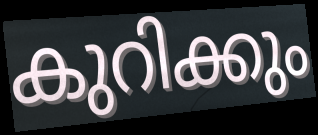
കുറിക്കും